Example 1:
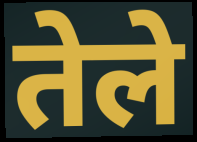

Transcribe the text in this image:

तेले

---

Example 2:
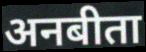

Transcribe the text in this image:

अनबीता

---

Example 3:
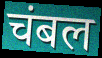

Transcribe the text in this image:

चंबल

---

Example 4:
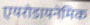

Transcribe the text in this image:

एयरोडायनेमिक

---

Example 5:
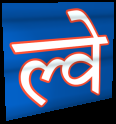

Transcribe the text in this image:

ल्वे